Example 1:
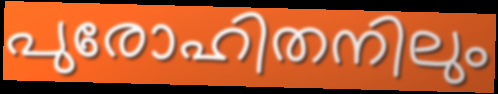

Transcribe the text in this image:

പുരോഹിതനിലും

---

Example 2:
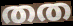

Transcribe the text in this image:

തത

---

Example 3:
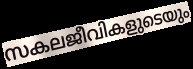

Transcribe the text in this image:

സകലജീവികളുടെയും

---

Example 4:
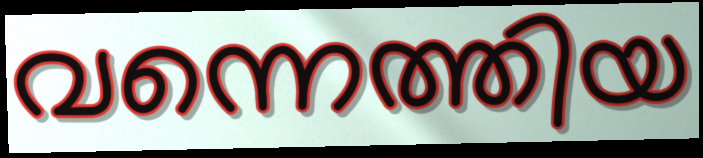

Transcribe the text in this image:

വന്നെത്തിയ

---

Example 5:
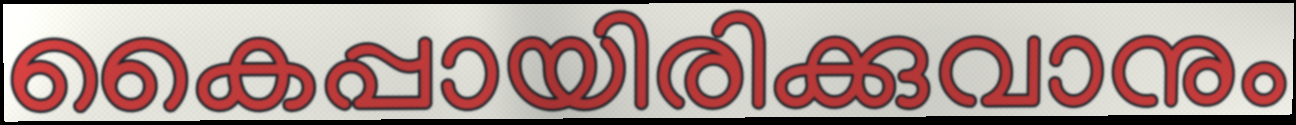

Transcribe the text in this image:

കൈപ്പായിരിക്കുവാനും